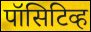
पॉसिटिव्ह